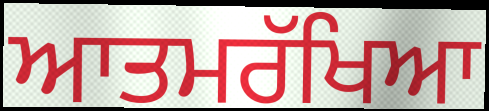
ਆਤਮਰੱਖਿਆ